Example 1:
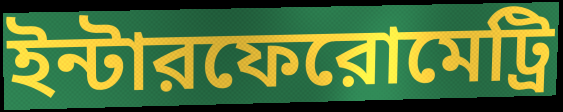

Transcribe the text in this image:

ইন্টারফেরোমেট্রি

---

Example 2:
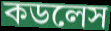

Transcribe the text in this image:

কডলেস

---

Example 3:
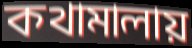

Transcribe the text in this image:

কথামালায়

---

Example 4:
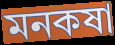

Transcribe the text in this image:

মনকষা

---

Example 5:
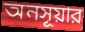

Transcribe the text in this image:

অনসূয়ার